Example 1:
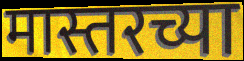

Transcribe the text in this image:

मास्तरच्या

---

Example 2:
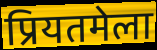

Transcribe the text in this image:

प्रियतमेला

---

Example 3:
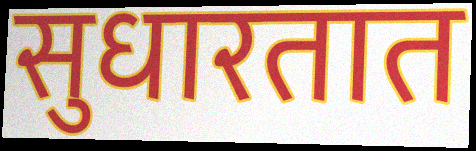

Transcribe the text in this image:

सुधारतात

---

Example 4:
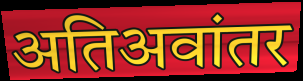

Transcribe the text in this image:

अतिअवांतर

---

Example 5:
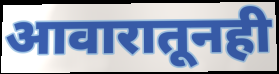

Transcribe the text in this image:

आवारातूनही